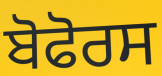
ਬੋਫੋਰਸ